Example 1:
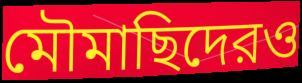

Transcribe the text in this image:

মৌমাছিদেরও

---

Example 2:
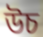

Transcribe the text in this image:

উচ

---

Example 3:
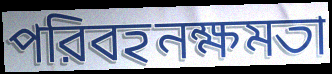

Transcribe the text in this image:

পরিবহনক্ষমতা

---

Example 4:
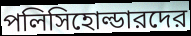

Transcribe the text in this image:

পলিসিহোল্ডারদের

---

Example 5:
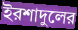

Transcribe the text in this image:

ইরশাদুলের